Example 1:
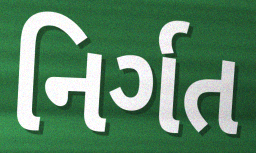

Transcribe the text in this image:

નિર્ગત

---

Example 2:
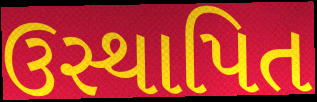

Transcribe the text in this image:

ઉસ્થાપિત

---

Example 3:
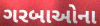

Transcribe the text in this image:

ગરબાઓના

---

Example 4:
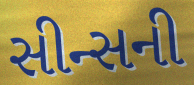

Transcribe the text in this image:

સીન્સની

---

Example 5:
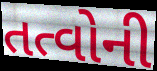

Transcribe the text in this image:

તત્વોની